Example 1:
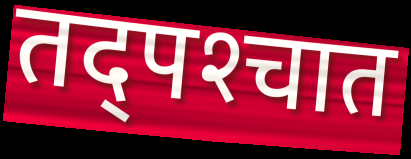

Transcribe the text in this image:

तद्पश्चात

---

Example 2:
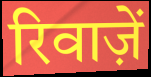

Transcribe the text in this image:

रिवाज़ें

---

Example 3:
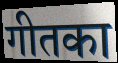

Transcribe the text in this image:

गीतका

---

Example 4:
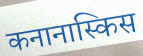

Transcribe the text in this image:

कनानास्किस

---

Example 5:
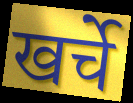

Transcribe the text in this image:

खर्चे